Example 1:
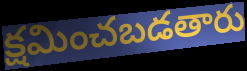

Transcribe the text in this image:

క్షమించబడతారు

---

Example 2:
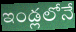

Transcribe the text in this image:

ఇండ్లలోనే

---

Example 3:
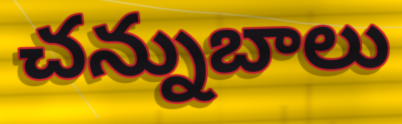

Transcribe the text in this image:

చన్నుబాలు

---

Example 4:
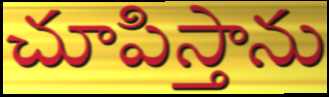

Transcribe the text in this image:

చూపిస్తాను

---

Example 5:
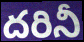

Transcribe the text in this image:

దరినీ